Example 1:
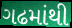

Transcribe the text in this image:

ગઢમાંથી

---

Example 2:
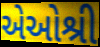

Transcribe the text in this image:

એઓશ્રી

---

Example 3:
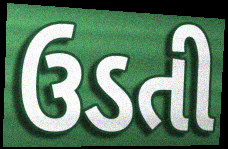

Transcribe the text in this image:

ઉડતી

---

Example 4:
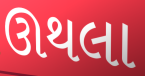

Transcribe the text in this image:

ઊથલા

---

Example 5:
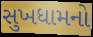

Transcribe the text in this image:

સુખધામનો